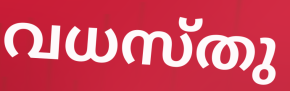
വധസ്തു